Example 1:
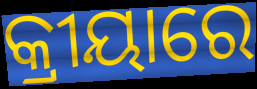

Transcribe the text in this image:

କ୍ରୀୟାରେ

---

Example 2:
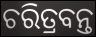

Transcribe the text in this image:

ଚରିତ୍ରବନ୍ତ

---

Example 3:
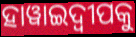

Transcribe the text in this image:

ହାୱାଇଦ୍ଵୀପକୁ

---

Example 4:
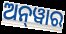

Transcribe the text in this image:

ଅନ୍‌ୱାର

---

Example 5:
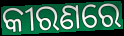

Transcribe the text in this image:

କୀରଣରେ